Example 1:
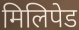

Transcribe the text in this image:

मिलिपेड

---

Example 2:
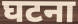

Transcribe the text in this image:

घटना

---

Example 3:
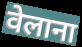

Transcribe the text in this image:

वेलाना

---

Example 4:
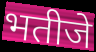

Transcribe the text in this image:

भतीजे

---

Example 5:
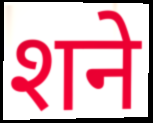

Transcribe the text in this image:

शने